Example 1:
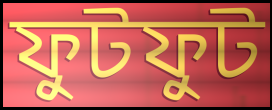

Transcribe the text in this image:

ফুটফুট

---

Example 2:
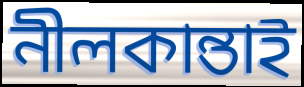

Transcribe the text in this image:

নীলকান্তাই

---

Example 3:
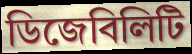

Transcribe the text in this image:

ডিজেবিলিটি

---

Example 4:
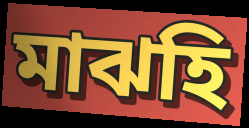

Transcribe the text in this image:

মাঝহি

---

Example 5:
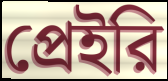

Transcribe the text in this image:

প্রেইরি